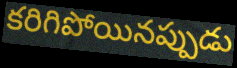
కరిగిపోయినప్పుడు